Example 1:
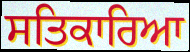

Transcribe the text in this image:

ਸਤਿਕਾਰਿਆ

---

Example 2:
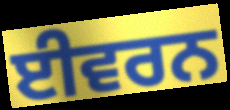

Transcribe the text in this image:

ਈਵਰਨ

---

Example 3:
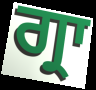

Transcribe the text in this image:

ਗ੍ਰਾ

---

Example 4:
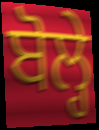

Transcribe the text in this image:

ਬੋਲ੍ਹੇ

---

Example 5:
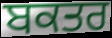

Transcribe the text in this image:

ਬਕਤਰ